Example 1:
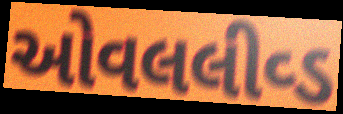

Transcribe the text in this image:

ઓવલલીવ્ડ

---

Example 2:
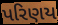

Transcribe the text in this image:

પરિણય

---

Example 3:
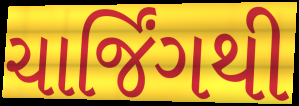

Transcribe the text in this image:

ચાર્જિંગથી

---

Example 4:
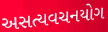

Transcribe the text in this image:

અસત્યવચનયોગ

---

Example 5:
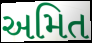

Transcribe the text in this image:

અમિત